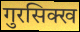
गुरसिक्ख